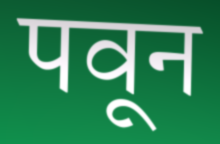
पवून